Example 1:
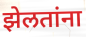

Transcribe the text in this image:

झेलतांना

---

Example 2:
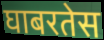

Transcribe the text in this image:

घाबरतेस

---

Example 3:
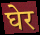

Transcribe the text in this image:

घेर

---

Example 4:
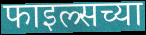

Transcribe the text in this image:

फाइल्सच्या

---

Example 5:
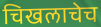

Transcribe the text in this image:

चिखलाचेच